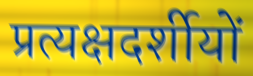
प्रत्यक्षदर्शीयों